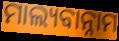
ମାଲ୍ୟବାନ୍ନାମ